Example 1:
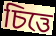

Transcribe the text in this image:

চিত্তে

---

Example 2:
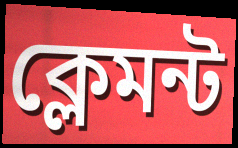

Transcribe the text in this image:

ক্লেমন্ট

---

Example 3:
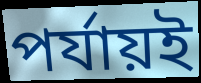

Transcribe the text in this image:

পর্যায়ই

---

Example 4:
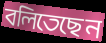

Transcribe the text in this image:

বলিতেছেন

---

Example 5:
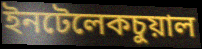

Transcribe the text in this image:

ইনটেলেকচুয়াল